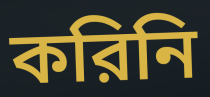
করিনি